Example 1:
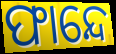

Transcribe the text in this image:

ଫାନ୍ଦେ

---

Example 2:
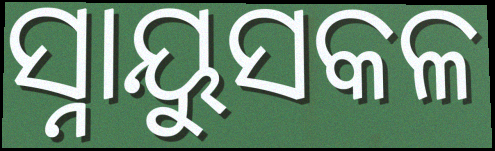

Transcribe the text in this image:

ସ୍ନାୟୁସକଳ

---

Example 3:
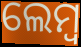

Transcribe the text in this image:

ଲେମ୍ବ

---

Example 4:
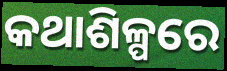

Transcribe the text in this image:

କଥାଶିଳ୍ପରେ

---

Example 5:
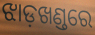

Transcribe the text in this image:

ଝାଡ଼ଖଣ୍ଡରେ